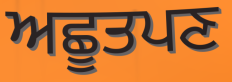
ਅਛੂਤਪਣ